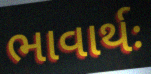
ભાવાર્થઃ